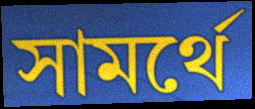
সামর্থে